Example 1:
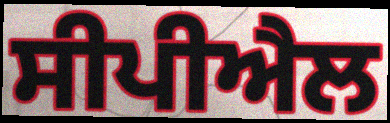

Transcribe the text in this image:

ਸੀਪੀਐਲ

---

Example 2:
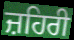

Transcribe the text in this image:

ਜ਼ਹਿਰੀ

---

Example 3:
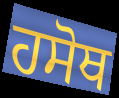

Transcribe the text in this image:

ਹਸੋਥ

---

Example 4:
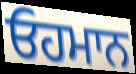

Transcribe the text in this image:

ਓਹਮਾਨ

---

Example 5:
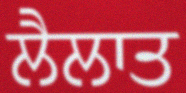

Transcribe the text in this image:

ਲੈਲਾਤ